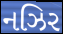
નઝિર